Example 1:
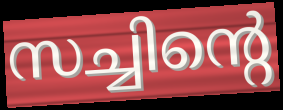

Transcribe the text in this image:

സച്ചിന്റെ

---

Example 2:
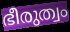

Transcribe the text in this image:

ഭീരുത്വം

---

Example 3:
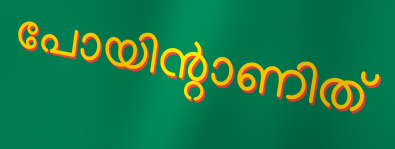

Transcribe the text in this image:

പോയിന്റാണിത്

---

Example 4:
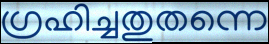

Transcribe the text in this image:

ഗ്രഹിച്ചതുതന്നെ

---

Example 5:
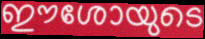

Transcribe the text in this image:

ഈശോയുടെ